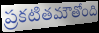
ప్రకటితమౌతోంది